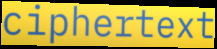
ciphertext